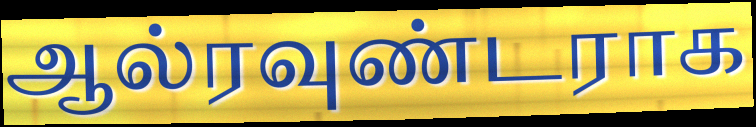
ஆல்ரவுண்டராக